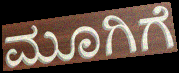
ಮೂಗಿಗೆ